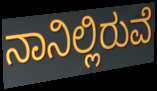
ನಾನಿಲ್ಲಿರುವೆ